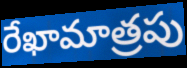
రేఖామాత్రపు